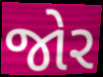
જોર